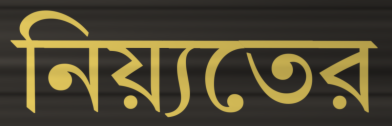
নিয়্যতের